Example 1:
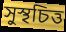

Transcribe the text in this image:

সুস্থচিত্ত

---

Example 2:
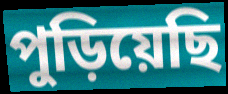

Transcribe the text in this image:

পুড়িয়েছি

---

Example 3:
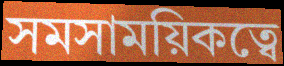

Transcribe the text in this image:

সমসাময়িকত্বে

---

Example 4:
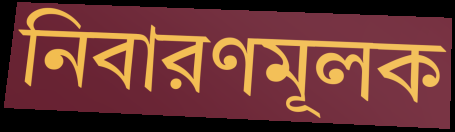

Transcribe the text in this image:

নিবারণমূলক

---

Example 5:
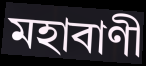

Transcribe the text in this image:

মহাবাণী